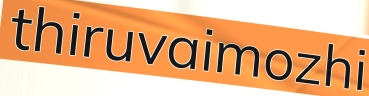
thiruvaimozhi